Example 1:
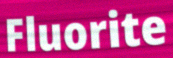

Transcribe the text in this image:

Fluorite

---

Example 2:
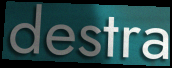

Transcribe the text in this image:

destra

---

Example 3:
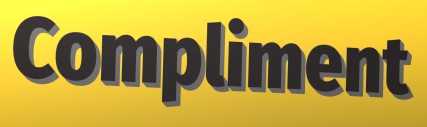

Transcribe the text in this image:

Compliment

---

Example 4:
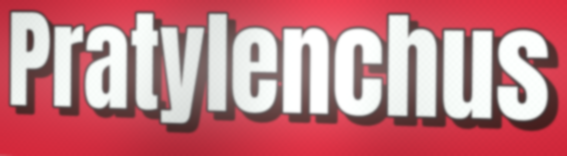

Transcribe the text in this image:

Pratylenchus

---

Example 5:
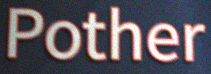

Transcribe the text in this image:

Pother